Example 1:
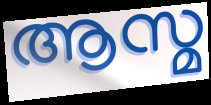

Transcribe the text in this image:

ആസ്മ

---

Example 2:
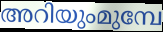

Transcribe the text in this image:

അറിയുംമുമ്പേ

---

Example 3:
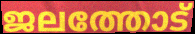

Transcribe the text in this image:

ജലത്തോട്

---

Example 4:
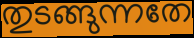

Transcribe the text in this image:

തുടങ്ങുന്നതേ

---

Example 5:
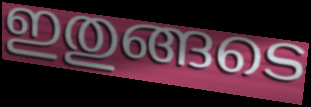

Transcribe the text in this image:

ഇതുങ്ങടെ